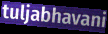
tuljabhavani